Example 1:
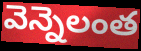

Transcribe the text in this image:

వెన్నెలంత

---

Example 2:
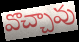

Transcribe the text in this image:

వొచ్చావు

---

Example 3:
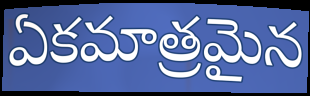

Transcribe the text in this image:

ఏకమాత్రమైన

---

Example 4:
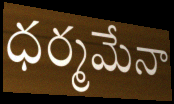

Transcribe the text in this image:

ధర్మమేనా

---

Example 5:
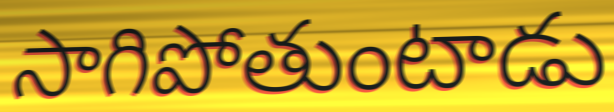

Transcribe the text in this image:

సాగిపోతుంటాడు